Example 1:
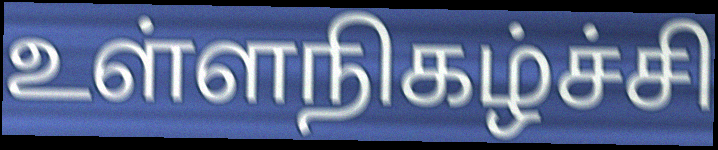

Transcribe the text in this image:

உள்ளநிகழ்ச்சி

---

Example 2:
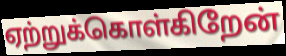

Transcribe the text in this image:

ஏற்றுக்கொள்கிறேன்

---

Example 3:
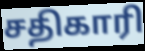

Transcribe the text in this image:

சதிகாரி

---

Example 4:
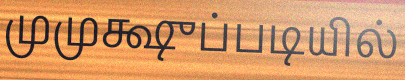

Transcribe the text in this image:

முமுக்ஷுப்படியில்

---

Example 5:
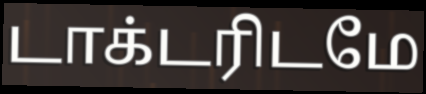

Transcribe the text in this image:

டாக்டரிடமே